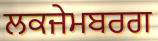
ਲਕਜੇਮਬਰਗ